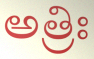
అత్రిః